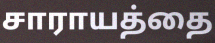
சாராயத்தை